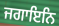
ਜਗਾਇਨਿ